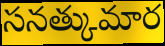
సనత్కుమార